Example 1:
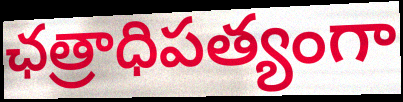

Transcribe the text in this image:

ఛత్రాధిపత్యంగా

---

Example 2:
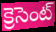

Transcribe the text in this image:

క్రెసెంట్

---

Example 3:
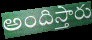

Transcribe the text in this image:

అందిస్తారు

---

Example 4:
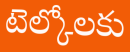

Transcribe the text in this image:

టెల్కోలకు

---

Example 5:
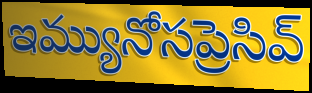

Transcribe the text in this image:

ఇమ్యునోసప్రెసివ్